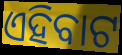
ଏହିବାଟ